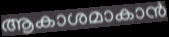
ആകാശമാകാൻ